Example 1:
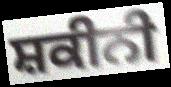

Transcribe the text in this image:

ਸ਼ਕੀਨੀ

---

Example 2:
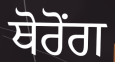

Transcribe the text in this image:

ਥੋਰੋਂਗ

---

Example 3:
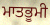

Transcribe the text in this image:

ਮਾਤਭੂਮੀ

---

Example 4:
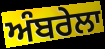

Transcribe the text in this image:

ਅੰਬਰੇਲਾ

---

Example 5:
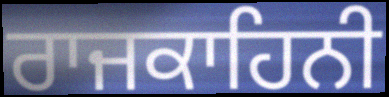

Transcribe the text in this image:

ਰਾਜਕਾਹਿਨੀ